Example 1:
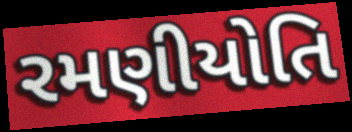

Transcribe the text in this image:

રમણીયોતિ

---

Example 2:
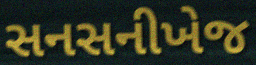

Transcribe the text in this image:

સનસનીખેજ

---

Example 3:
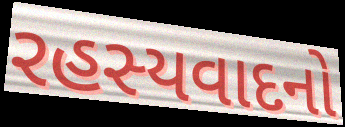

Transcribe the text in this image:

રહસ્યવાદનો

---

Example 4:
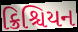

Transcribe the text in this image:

ક્રિશ્ચિયન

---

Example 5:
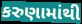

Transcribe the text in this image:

કરુણામાંથી